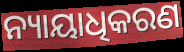
ନ୍ୟାୟାଧିକରଣ